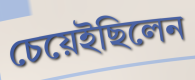
চেয়েইছিলেন